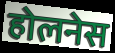
होलनेस